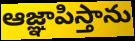
ఆజ్ఞాపిస్తాను